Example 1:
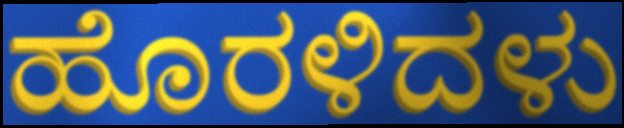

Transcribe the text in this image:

ಹೊರಳಿದಳು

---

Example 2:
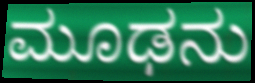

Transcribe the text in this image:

ಮೂಢನು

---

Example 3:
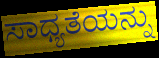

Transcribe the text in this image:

ಸಾಧ್ಯತೆಯನ್ನು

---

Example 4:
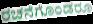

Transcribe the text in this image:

ರಚನೆಗೊಂಡರೂ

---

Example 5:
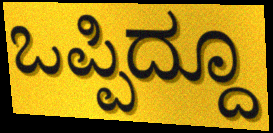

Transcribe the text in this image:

ಒಪ್ಪಿದ್ದೂ